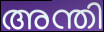
അന്തി